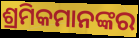
ଶ୍ରମିକମାନଙ୍କର